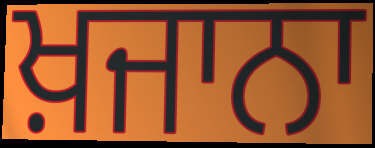
ਖ਼ਜਾਨਾ